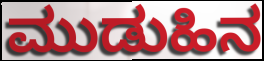
ಮುಡುಹಿನ